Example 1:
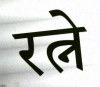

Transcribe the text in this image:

रत्ने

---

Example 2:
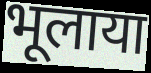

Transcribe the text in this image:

भूलाया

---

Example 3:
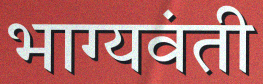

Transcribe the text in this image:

भाग्यवंती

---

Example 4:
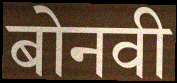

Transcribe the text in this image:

बोनवी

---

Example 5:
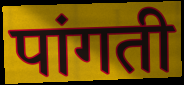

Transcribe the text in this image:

पांगती